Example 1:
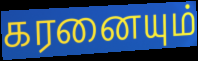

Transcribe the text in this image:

கரனையும்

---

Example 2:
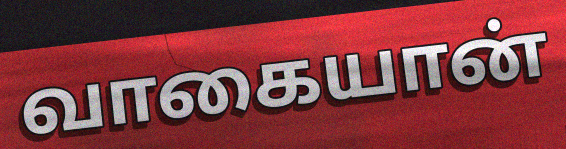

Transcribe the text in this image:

வாகையான்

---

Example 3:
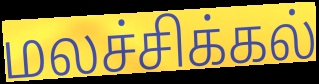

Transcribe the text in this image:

மலச்சிக்கல்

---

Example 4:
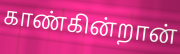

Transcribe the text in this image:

காண்கின்றான்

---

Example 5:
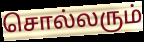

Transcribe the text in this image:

சொல்லரும்